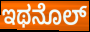
ಇಥನೊಲ್